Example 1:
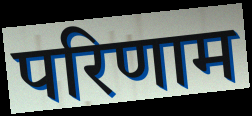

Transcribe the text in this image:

परिणाम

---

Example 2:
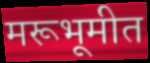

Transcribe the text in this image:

मरूभूमीत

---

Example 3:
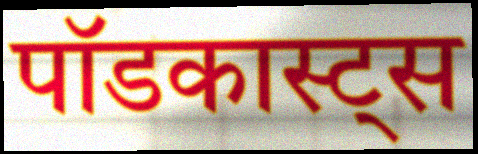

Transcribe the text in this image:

पॉडकास्ट्स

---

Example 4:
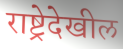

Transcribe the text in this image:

राष्ट्रेदेखील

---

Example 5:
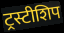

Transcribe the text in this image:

ट्रस्टीशिप